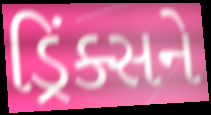
ડ્રિંક્સને